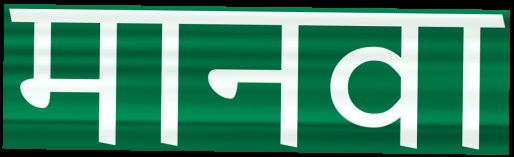
मानवा